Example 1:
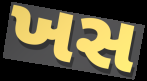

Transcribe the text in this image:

ખસ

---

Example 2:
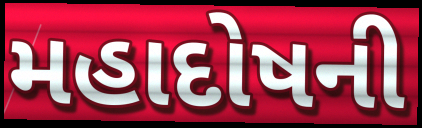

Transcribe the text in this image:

મહાદોષની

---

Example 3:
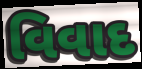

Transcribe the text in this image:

વિવાદ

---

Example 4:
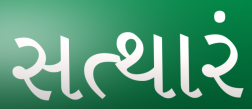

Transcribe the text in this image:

સત્થારં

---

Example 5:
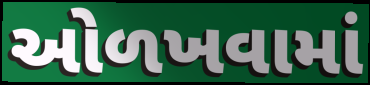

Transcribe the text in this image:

ઓળખવામાં